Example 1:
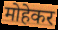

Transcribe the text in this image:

मोहेकर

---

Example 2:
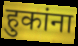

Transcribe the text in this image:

हुकांना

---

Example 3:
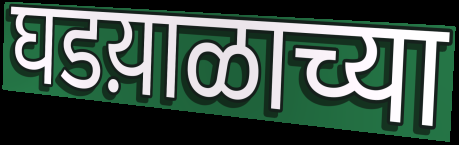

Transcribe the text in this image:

घडय़ाळाच्या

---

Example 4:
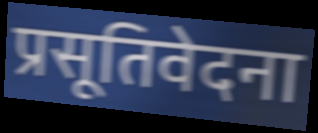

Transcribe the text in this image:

प्रसूतिवेदना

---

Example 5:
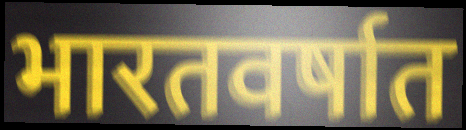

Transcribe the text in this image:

भारतवर्षात